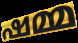
ഷമ്മ